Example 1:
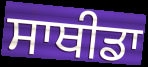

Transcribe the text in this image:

ਸਾਥੀਡਾ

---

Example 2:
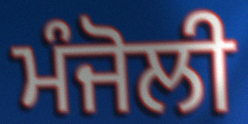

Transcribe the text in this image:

ਮੰਜੋਲੀ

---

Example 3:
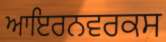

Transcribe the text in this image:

ਆਇਰਨਵਰਕਸ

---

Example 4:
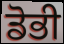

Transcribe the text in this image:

ਡੋਭੀ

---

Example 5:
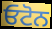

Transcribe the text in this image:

ਓਟੋਨ